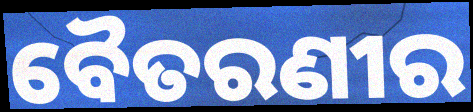
ବୈତରଣୀର